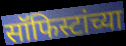
सॉफिस्टांच्या